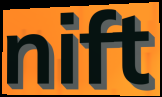
nift